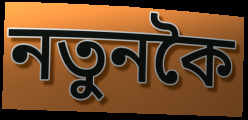
নতুনকৈ